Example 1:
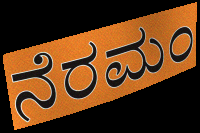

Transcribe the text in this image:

ನೆರಮಂ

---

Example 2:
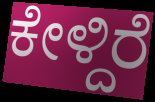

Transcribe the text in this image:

ಕೇಳ್ದಿರೆ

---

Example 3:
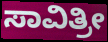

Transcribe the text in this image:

ಸಾವಿತ್ರೀ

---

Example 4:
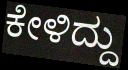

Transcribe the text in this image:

ಕೇಳಿದ್ದು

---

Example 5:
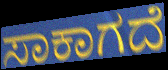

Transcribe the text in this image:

ಸಾಕಾಗದೆ